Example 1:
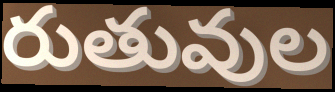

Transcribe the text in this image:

రుతువుల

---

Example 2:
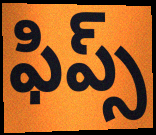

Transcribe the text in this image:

ఫిప్స్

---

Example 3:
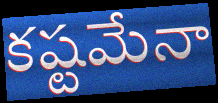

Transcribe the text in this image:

కష్టమేనా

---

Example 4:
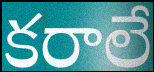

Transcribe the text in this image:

కరాలే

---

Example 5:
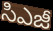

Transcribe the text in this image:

సిఎజీ